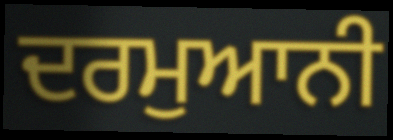
ਦਰਮੁਆਨੀ